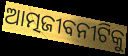
ଆତ୍ମଜୀବନୀଟିକୁ